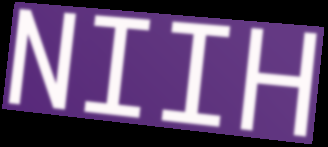
NIIH